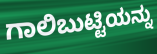
ಗಾಲಿಬುಟ್ಟಿಯನ್ನು